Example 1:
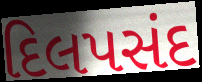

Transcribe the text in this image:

દિલપસંદ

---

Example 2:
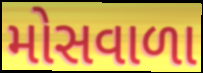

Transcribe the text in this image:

મોસવાળા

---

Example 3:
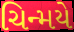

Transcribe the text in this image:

ચિન્મયે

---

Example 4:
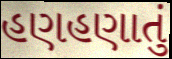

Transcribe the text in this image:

હણહણાતું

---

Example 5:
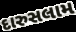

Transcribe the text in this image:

દારુસલામ